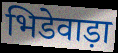
भिडेवाड़ा